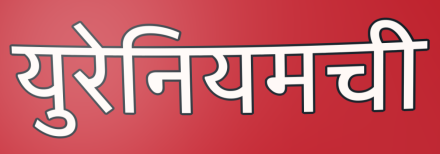
युरेनियमची